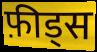
फ़ीड्स